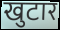
खुटार